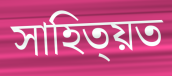
সাহিত্য়ত